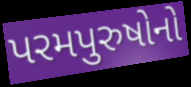
પરમપુરુષોનો